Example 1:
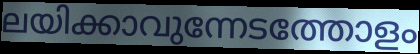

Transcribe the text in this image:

ലയിക്കാവുന്നേടത്തോളം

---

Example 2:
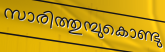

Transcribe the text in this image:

സാരിത്തുമ്പുകൊണ്ടു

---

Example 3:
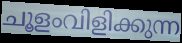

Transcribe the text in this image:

ചൂളംവിളിക്കുന്ന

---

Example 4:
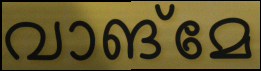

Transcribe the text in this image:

വാങ്മേ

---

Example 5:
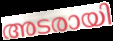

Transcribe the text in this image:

അടരായി